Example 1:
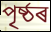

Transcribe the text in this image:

পৃষ্ঠৰ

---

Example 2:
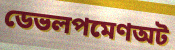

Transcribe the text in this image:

ডেভলপমেণঅট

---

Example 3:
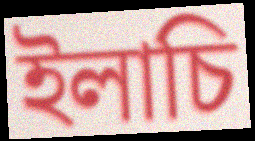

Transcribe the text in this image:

ইলাচি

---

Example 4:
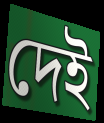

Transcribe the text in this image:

দেই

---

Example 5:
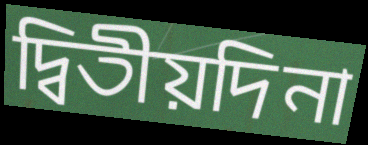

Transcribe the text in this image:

দ্বিতীয়দিনা